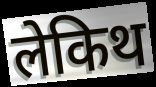
लेकिथ